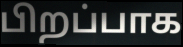
பிறப்பாக